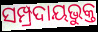
ସମ୍ପ୍ରଦାୟଭୁକ୍ତ